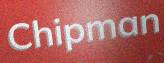
Chipman